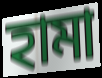
হামা